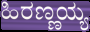
ಹಿರಣ್ಣಯ್ಯ